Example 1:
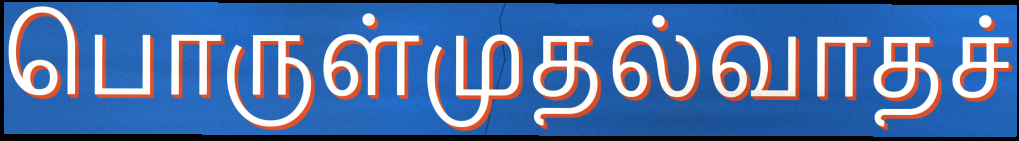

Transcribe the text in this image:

பொருள்முதல்வாதச்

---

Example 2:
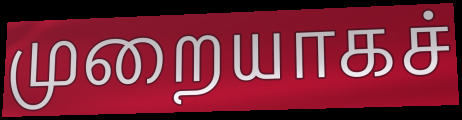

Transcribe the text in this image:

முறையாகச்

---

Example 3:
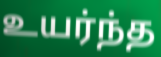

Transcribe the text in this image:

உயர்ந்த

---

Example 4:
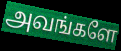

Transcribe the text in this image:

அவங்களே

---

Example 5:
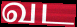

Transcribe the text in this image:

வட